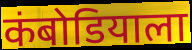
कंबोडियाला